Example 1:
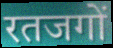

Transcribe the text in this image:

रतजगों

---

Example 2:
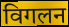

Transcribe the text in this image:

विगलन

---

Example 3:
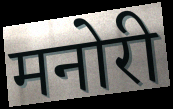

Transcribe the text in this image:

मनोरी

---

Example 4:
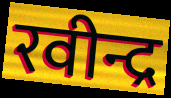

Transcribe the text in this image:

रवीन्द्र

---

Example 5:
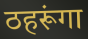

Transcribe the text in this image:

ठहरूंगा